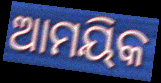
ଆମୟିକ